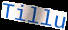
Tillu